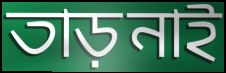
তাড়নাই